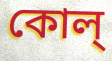
কোল্